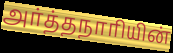
அர்த்தநாரியின்